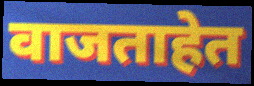
वाजताहेत